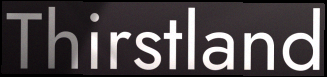
Thirstland